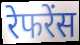
रेफरेंस